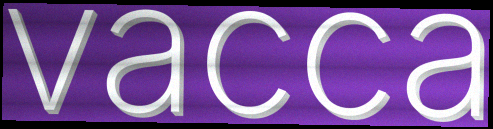
vacca